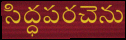
సిద్ధపరచెను